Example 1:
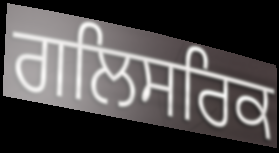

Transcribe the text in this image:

ਗਲਿਸਰਿਕ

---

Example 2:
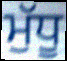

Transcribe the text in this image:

ਮੁੱਧੂ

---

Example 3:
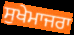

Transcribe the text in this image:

ਸੁਖੇਮਾਜਰਾ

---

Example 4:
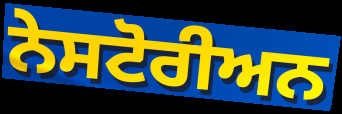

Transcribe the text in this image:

ਨੇਸਟੋਰੀਅਨ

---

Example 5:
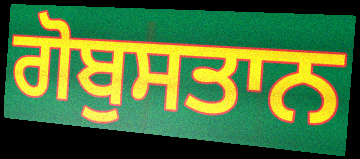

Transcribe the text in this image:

ਗੋਬੁਸਤਾਨ